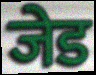
जेड